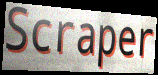
Scraper